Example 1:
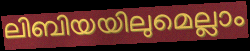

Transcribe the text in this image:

ലിബിയയിലുമെല്ലാം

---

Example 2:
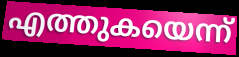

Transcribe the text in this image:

എത്തുകയെന്ന്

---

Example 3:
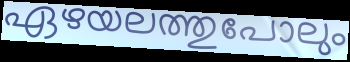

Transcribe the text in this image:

ഏഴയലത്തുപോലും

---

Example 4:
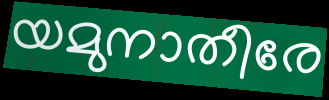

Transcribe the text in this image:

യമുനാതീരേ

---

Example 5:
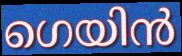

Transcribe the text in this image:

ഗെയിൻ